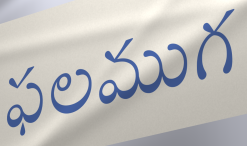
ఫలముగ